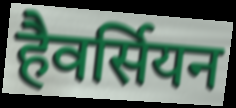
हैवर्सियन